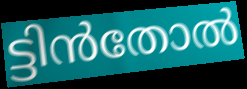
ട്ടിൻതോൽ